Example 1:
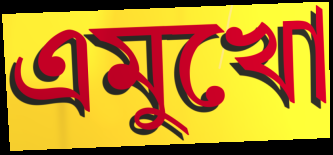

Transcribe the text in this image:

এমুখো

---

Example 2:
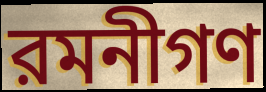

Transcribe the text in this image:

রমনীগণ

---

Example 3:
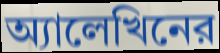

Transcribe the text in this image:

অ্যালেখিনের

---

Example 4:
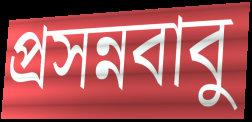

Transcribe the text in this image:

প্রসন্নবাবু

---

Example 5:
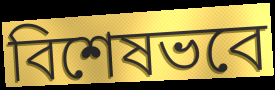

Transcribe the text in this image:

বিশেষভবে